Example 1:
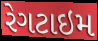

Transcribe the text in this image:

રેગટાઇમ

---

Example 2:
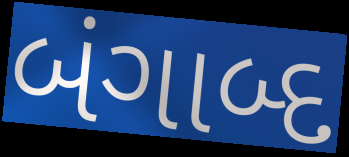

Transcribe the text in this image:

બંગાબ્દ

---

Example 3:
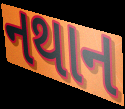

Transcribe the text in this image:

નથાન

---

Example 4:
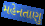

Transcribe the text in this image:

મહેનતાણુ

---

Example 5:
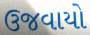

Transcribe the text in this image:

ઉજવાયો